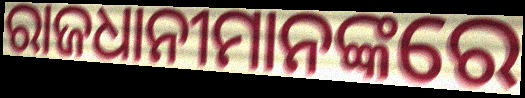
ରାଜଧାନୀମାନଙ୍କରେ